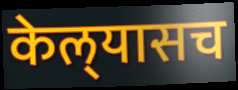
केल्यासच